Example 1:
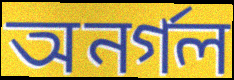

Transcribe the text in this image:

অনর্গল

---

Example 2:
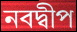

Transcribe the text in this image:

নবদ্বীপ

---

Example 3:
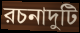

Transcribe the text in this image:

রচনাদুটি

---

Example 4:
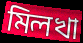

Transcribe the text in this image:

মিলখা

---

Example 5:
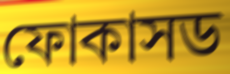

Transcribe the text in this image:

ফোকাসড